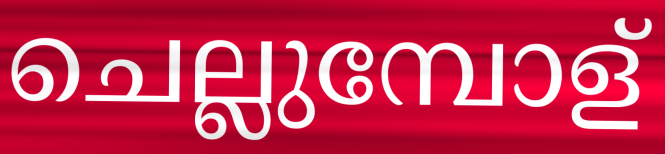
ചെല്ലുമ്പോള്